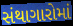
સંથાગારોમાં